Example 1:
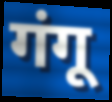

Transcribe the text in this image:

गंगू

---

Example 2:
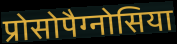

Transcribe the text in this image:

प्रोसोपैग्नोसिया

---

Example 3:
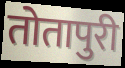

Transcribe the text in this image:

तोतापुरी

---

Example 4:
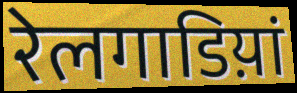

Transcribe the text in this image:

रेलगाडिय़ां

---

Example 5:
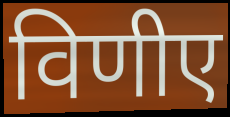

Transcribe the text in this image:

विणीए